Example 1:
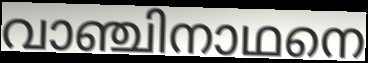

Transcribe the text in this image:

വാഞ്ചിനാഥനെ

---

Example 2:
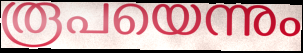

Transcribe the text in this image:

രൂപയെന്നും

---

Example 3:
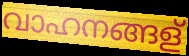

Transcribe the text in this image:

വാഹനങ്ങള്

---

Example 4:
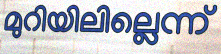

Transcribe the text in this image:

മുറിയിലില്ലെന്ന്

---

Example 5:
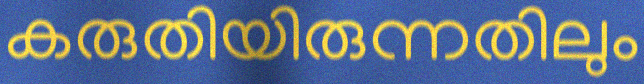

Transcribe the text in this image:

കരുതിയിരുന്നതിലും